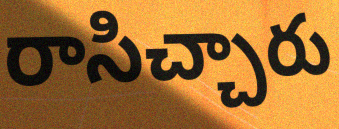
రాసిచ్చారు